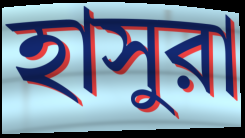
হাসুরা